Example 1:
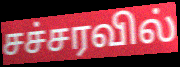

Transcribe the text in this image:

சச்சரவில்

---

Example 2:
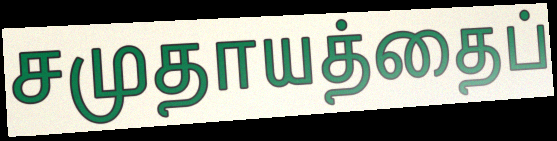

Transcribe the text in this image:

சமுதாயத்தைப்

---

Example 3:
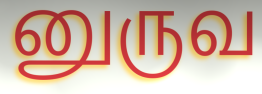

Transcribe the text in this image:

னுருவ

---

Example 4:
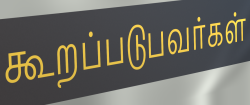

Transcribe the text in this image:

கூறப்படுபவர்கள்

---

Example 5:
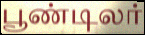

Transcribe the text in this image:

பூண்டிலர்